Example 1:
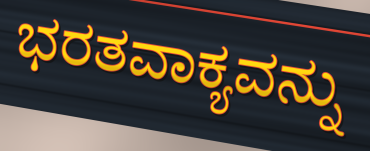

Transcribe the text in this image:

ಭರತವಾಕ್ಯವನ್ನು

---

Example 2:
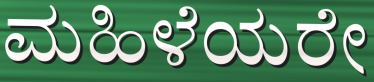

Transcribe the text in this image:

ಮಹಿಳೆಯರೇ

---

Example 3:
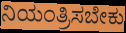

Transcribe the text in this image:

ನಿಯಂತ್ರಿಸಬೇಕು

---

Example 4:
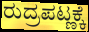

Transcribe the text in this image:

ರುದ್ರಪಟ್ಣಕ್ಕೆ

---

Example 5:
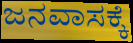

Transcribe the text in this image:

ಜನವಾಸಕ್ಕೆ